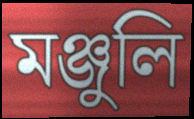
মঞ্জুলি